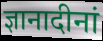
ज्ञानादीनां